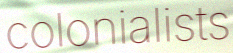
colonialists